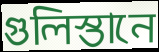
গুলিস্তানে